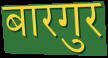
बारगुर